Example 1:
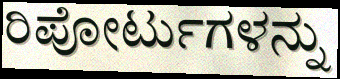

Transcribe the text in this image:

ರಿಪೋರ್ಟುಗಳನ್ನು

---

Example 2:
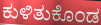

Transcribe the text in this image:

ಕುಳಿತುಕೊಂಡ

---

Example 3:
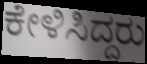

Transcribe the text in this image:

ಕೇಳಿಸಿದ್ದರು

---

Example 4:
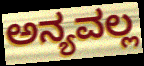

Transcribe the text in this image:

ಅನ್ಯವಲ್ಲ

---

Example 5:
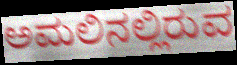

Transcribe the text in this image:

ಅಮಲಿನಲ್ಲಿರುವ